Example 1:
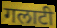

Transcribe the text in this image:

गलाटी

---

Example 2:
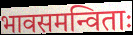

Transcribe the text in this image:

भावसमन्विताः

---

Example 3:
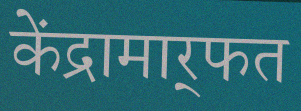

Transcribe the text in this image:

केंद्रामार्फत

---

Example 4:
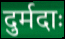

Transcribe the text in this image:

दुर्मदाः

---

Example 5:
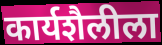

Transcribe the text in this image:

कार्यशैलीला